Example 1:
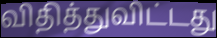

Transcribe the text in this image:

விதித்துவிட்டது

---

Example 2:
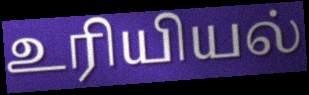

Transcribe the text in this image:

உரியியல்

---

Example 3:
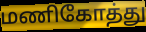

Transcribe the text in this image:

மணிகோத்து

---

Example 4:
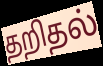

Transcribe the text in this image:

தறிதல்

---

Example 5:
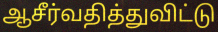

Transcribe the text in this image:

ஆசீர்வதித்துவிட்டு